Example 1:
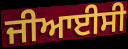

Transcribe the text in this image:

ਜੀਆਈਸੀ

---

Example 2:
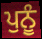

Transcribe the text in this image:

ਪੁਨੂੰ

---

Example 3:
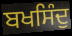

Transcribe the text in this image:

ਬਖਸਿੰਦੁ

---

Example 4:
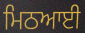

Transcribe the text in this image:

ਮਿਠਆਈ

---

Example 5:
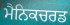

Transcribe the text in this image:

ਮੈਨਿਕਚਰਡ